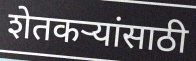
शेतकऱ्यांसाठी